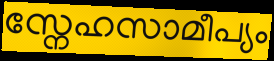
സ്നേഹസാമീപ്യം